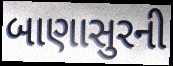
બાણાસુરની